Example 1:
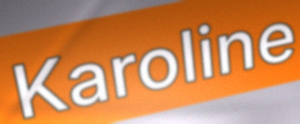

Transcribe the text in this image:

Karoline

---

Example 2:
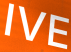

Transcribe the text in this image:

IVE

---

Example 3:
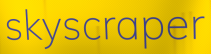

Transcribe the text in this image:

skyscraper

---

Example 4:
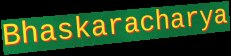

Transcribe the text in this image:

Bhaskaracharya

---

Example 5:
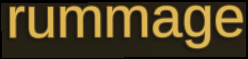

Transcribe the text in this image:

rummage